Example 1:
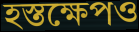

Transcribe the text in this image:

হস্তক্ষেপও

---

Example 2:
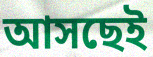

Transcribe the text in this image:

আসছেই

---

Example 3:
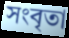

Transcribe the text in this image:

সংবৃতা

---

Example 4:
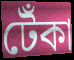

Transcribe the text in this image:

টেঁকা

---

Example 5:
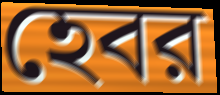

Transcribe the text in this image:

হেবর